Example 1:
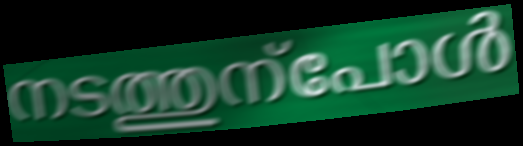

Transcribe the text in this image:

നടത്തുന്പോൾ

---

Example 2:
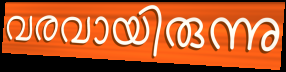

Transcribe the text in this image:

വരവായിരുന്നു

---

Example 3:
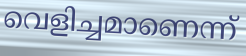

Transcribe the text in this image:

വെളിച്ചമാണെന്ന്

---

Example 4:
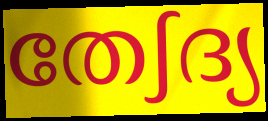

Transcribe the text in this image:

തേഽദ്യ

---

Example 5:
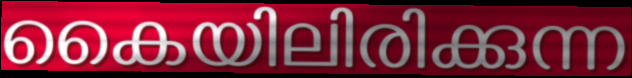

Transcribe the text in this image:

കൈയിലിരിക്കുന്ന